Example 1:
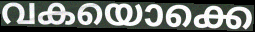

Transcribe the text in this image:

വകയൊക്കെ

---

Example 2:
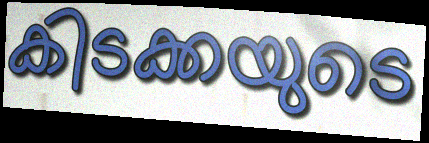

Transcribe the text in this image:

കിടക്കയുടെ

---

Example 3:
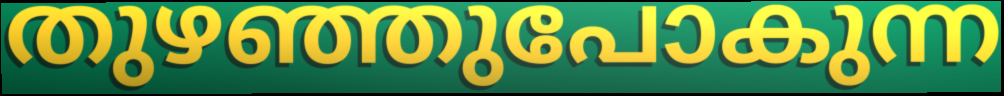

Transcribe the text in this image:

തുഴഞ്ഞുപോകുന്ന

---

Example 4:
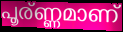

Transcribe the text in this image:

പൂര്ണ്ണമാണ്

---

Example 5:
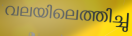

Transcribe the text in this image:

വലയിലെത്തിച്ചു